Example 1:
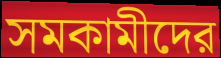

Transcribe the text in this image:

সমকামীদের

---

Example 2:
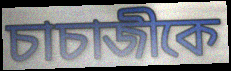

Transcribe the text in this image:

চাচাজীকে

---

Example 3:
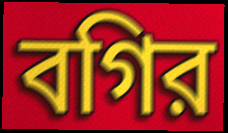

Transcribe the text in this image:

বগির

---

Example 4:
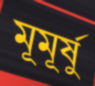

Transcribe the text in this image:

মূমূর্ষু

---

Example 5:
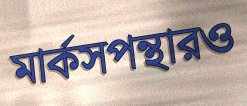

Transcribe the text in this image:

মার্কসপন্থারও